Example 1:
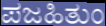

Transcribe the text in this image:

ಪಜಹಿತುಂ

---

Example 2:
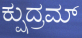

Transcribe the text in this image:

ಕ್ಷುದ್ರಮ್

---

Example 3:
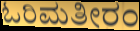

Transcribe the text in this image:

ಓರಿಮತೀರಂ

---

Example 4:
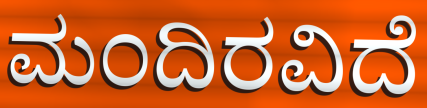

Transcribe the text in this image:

ಮಂದಿರವಿದೆ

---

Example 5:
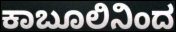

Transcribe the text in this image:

ಕಾಬೂಲಿನಿಂದ